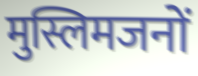
मुस्लिमजनों